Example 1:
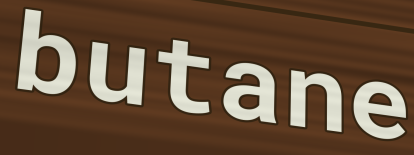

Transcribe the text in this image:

butane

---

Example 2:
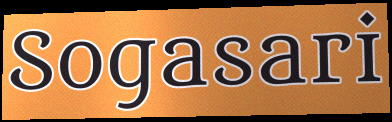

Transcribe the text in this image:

Sogasari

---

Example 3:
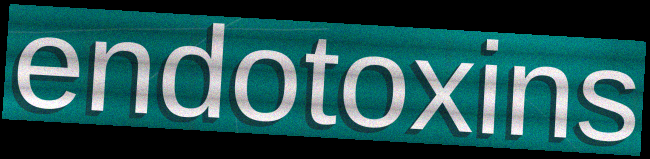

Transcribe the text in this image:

endotoxins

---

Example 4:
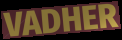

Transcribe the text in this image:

VADHER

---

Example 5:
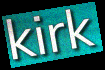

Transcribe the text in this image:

kirk